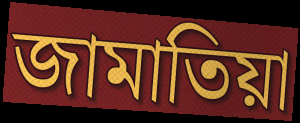
জামাতিয়া